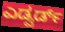
ಎಡ್ವರ್ಡ್